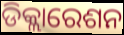
ଡିକ୍ଲାରେଶନ